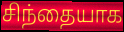
சிந்தையாக